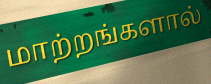
மாற்றங்களால்